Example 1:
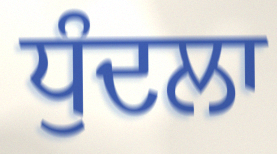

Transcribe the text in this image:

ਧੁੰਦਲਾ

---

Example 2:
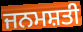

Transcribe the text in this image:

ਜਨਮਸ਼ਤੀ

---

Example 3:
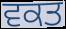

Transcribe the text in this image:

ਵਕਤ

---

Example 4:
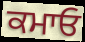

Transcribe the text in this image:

ਕਮਾਓ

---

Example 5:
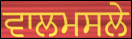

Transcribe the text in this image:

ਵਾਲਮਸਲੇ